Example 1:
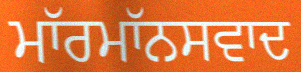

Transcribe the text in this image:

ਮਾੱਰਮਾੱਨਸਵਾਦ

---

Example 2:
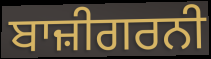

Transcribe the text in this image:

ਬਾਜ਼ੀਗਰਨੀ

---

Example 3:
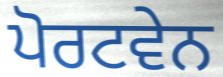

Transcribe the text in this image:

ਪੋਰਟਵੇਨ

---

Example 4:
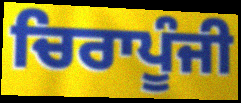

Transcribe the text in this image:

ਚਿਰਾਪੂੰਜੀ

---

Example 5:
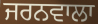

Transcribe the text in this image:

ਜਰਨਵਾਲਾ